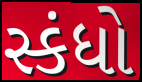
સ્કંધો